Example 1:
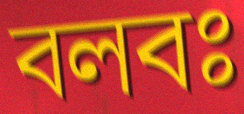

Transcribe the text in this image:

বলবঃ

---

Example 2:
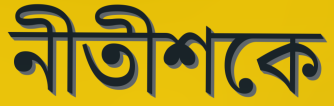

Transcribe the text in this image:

নীতীশকে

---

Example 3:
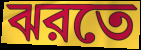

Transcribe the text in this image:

ঝরতে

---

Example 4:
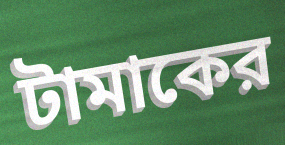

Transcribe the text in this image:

টামাকের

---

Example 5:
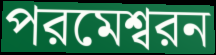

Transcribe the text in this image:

পরমেশ্বরন